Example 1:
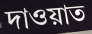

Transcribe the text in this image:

দাওয়াত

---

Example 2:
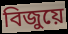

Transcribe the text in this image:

বিজুয়ে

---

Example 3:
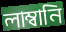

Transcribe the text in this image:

লাম্বানি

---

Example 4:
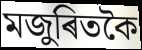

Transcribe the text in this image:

মজুৰিতকৈ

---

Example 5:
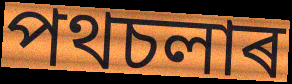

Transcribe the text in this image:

পথচলাৰ